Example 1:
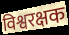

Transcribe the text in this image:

विश्वरक्षक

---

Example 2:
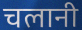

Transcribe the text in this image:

चलानी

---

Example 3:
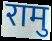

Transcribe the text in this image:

रामु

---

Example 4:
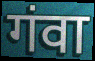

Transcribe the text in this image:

गंवा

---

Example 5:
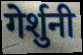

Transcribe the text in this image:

गेर्शुनी